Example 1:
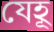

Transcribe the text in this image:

যেহূ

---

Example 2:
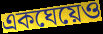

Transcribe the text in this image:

একঘেয়েও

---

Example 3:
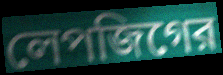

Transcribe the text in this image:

লেপজিগের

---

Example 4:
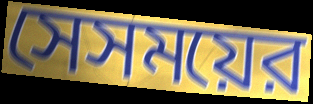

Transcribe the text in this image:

সেসময়ের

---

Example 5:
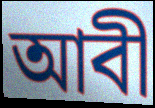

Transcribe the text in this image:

আবী